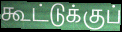
கூட்டுக்குப்